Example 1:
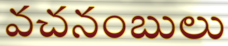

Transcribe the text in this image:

వచనంబులు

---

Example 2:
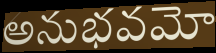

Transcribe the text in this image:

అనుభవమో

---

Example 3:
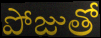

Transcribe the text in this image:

పోజుతో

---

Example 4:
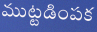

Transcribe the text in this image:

ముట్టడింపక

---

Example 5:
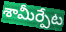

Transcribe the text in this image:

శామీర్పేట